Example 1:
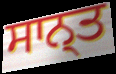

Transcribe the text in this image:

ਸਾਨ੍ਤ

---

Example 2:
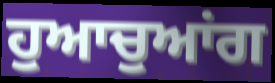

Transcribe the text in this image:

ਹੁਆਚੁਆਂਗ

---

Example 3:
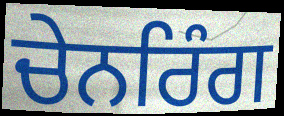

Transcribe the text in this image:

ਚੇਨਰਿੰਗ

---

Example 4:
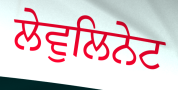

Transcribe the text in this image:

ਲੇਵੁਲਿਨੇਟ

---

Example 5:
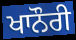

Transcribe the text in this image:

ਖਾਨੌਰੀ